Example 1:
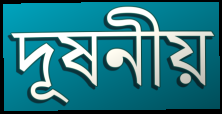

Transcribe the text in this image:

দূষনীয়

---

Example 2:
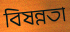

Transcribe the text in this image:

বিষন্নতা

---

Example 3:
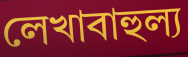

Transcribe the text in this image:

লেখাবাহুল্য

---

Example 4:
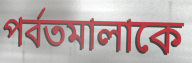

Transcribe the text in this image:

পর্বতমালাকে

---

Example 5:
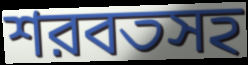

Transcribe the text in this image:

শরবতসহ